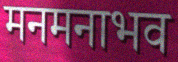
मनमनाभव